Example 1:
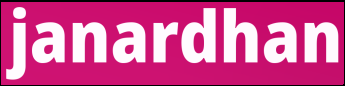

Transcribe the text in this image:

janardhan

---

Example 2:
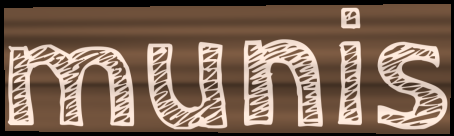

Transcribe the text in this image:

munis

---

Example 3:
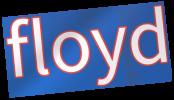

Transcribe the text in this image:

floyd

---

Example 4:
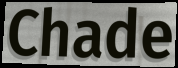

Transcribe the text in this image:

Chade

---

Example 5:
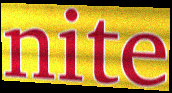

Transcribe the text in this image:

nite